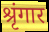
श्रृंगार